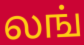
லங்